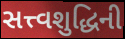
સત્ત્વશુદ્ધિની